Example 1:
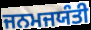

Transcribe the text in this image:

ਜਨਮਜਯੰਤੀ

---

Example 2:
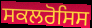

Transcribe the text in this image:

ਸਕਲਰੋਸਿਸ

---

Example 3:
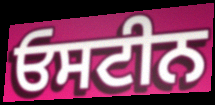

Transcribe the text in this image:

ਓਸਟੀਨ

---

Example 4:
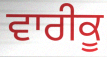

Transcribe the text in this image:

ਵਾਰੀਕੂ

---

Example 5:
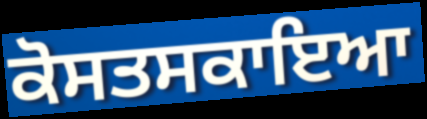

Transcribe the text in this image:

ਕੋਸਤਸਕਾਇਆ